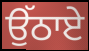
ਉੱਠਾਏ